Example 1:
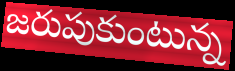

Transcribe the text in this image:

జరుపుకుంటున్న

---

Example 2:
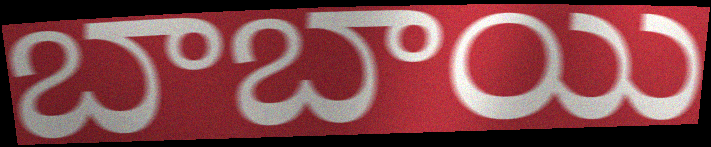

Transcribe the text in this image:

బాబాయి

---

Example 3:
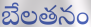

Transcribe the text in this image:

బేలతనం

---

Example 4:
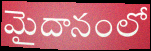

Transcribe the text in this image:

మైదానంలో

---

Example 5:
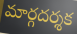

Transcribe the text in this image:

మార్గదర్శక